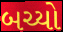
બચ્યો